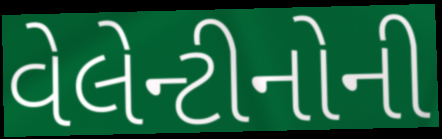
વેલેન્ટીનોની